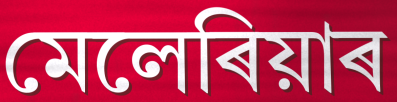
মেলেৰিয়াৰ